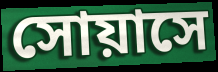
সোয়াসে